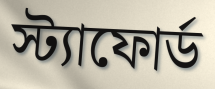
স্ট্যাফোর্ড